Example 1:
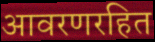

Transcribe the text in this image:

आवरणरहित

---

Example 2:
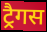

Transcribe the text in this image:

ट्रैगस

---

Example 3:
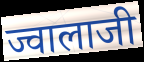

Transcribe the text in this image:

ज्वालाजी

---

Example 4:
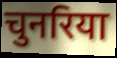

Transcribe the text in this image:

चुनरिया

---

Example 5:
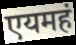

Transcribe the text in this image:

एयमहं